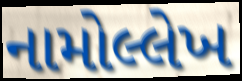
નામોલ્લેખ